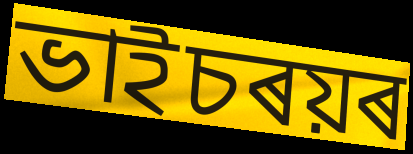
ভাইচৰয়ৰ